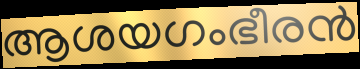
ആശയഗംഭീരൻ